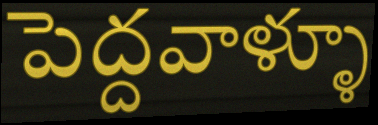
పెద్దవాళ్ళూ